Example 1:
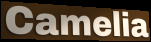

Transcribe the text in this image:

Camelia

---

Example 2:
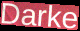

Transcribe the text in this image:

Darke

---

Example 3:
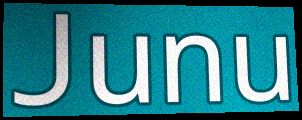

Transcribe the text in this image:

Junu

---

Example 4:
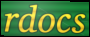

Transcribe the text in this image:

rdocs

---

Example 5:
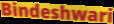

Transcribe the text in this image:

Bindeshwari